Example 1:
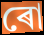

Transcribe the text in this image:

ৰো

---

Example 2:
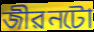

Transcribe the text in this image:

জীৱনটো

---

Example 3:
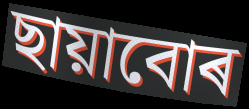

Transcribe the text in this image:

ছায়াবোৰ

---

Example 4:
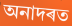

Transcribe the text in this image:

অনাদৰত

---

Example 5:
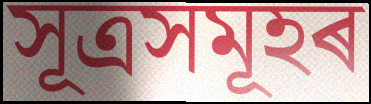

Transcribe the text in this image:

সূত্ৰসমূহৰ